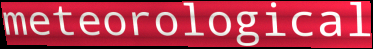
meteorological